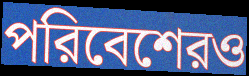
পরিবেশেরও